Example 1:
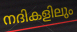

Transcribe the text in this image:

നദികളിലും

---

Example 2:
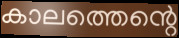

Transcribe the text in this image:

കാലത്തെന്റെ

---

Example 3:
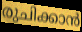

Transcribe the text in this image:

രുചിക്കാൻ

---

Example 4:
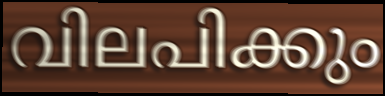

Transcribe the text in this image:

വിലപിക്കും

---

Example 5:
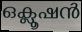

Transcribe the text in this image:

ഒക്ലൂഷൻ